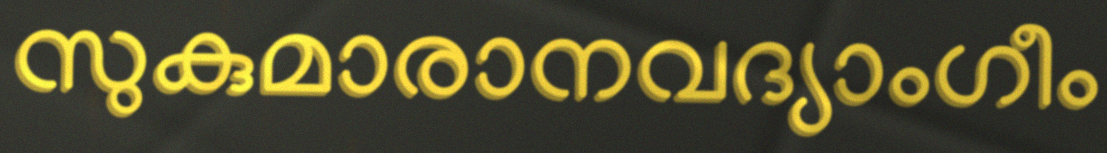
സുകുമാരാനവദ്യാംഗീം